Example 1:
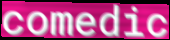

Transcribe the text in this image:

comedic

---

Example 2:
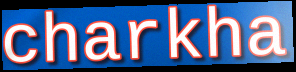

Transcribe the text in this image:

charkha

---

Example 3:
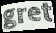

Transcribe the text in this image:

gret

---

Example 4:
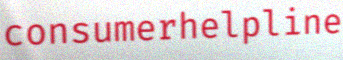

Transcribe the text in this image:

consumerhelpline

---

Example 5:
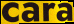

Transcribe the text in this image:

cara